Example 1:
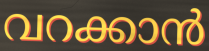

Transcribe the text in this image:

വറക്കാൻ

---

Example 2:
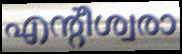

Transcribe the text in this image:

എന്റീശ്വരാ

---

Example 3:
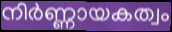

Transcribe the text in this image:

നിർണ്ണായകത്വം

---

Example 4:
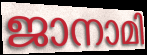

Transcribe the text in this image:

ജാനാമി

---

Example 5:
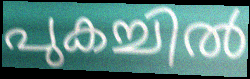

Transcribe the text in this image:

പുകച്ചിൽ